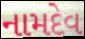
નામદેવ